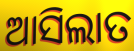
ଆସିଲାତ